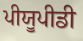
ਪੀਯੂਪੀਡੀ